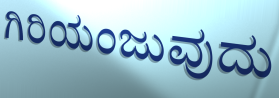
ಗಿರಿಯಂಜುವುದು